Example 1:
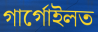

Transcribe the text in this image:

গাৰ্গোইলত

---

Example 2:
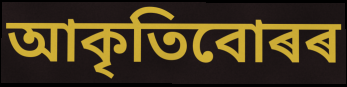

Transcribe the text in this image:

আকৃতিবোৰৰ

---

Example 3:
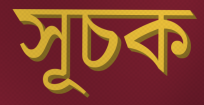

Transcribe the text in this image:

সূচক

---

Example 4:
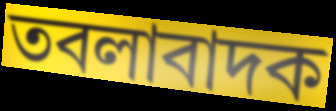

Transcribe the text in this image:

তবলাবাদক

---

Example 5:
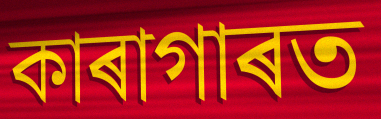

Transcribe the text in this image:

কাৰাগাৰত